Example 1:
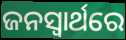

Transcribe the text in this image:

ଜନସ୍ୱାର୍ଥରେ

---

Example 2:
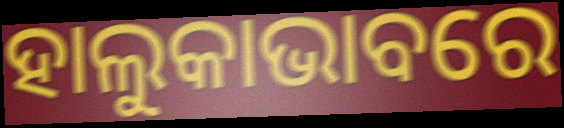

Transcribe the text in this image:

ହାଲୁକାଭାବରେ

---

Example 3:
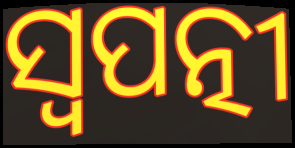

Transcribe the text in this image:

ସ୍ୱପତ୍ନୀ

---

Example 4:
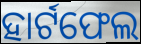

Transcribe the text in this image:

ହାର୍ଟଫେଲ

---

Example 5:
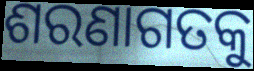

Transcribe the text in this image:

ଶରଣାଗତକୁ